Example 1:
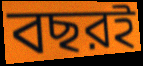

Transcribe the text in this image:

বছরই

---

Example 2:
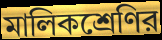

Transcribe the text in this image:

মালিকশ্রেণির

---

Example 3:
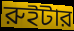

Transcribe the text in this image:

রুইটার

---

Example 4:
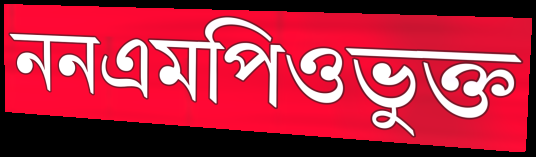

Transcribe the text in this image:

ননএমপিওভুক্ত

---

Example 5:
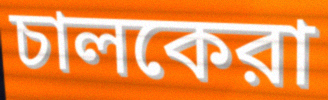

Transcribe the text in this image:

চালকেরা